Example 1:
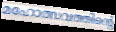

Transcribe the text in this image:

മഹോത്സവത്തിന്റെ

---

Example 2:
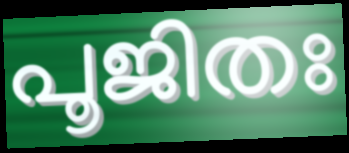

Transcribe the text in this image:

പൂജിതഃ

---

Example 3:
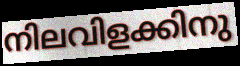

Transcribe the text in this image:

നിലവിളക്കിനു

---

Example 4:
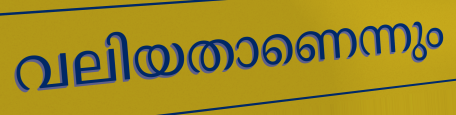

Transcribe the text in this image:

വലിയതാണെന്നും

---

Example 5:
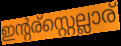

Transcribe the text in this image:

ഇന്റര്സ്റ്റെല്ലാര്